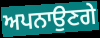
ਅਪਨਾਉਣਗੇ